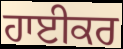
ਹਾਈਕਰ